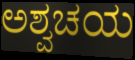
ಅಶ್ವಚಯ